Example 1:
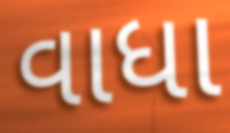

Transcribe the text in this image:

વાધા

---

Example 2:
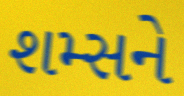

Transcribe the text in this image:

શમ્સને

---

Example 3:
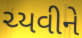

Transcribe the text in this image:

ચ્યવીને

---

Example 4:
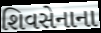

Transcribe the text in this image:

શિવસેનાના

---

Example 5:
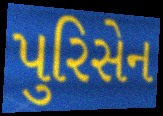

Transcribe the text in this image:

પુરિસેન